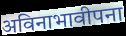
अविनाभावीपना